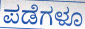
ಪಡೆಗಳೂ